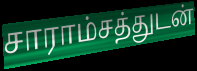
சாராம்சத்துடன்